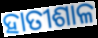
ହାତୀଶାଳ